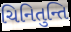
ચિનિતુન્તિ